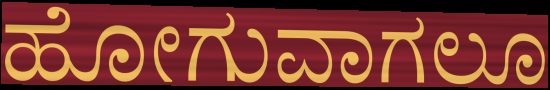
ಹೋಗುವಾಗಲೂ